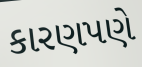
કારણપણે